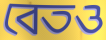
বেতও